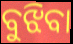
ବୁଝିବା